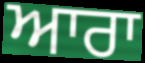
ਆਰਾ